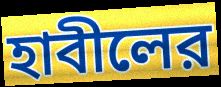
হাবীলের